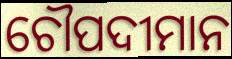
ଚୌପଦୀମାନ